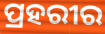
ପ୍ରହରୀର